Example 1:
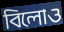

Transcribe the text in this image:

বিলোও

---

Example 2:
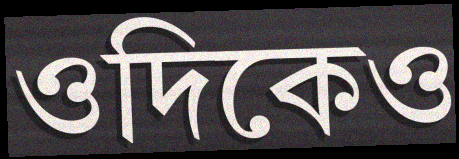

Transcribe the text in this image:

ওদিকেও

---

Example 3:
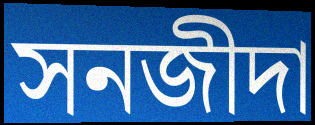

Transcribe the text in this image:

সনজীদা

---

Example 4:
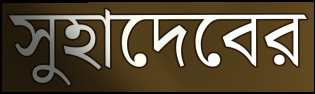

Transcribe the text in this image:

সুহাদেবের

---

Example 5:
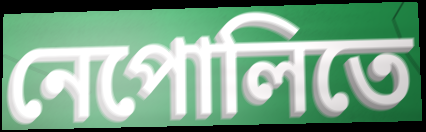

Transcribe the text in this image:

নেপোলিতে